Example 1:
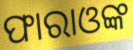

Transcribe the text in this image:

ଫାରାଓଙ୍କ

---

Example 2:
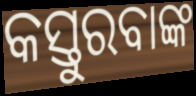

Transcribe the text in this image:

କସ୍ତୁରବାଙ୍କ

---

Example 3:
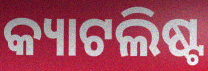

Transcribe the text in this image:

କ୍ୟାଟଲିଷ୍ଟ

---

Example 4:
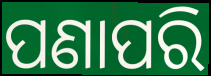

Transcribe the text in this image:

ପଣାପରି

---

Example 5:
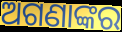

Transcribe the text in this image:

ଅଗଣାଙ୍କର